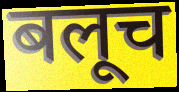
बलूच